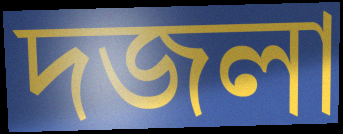
দজলা